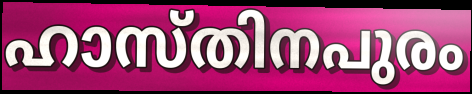
ഹാസ്തിനപുരം